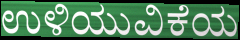
ಉಳಿಯುವಿಕೆಯ